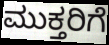
ಮುಕ್ತರಿಗೆ